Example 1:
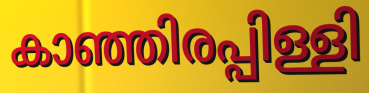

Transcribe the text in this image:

കാഞ്ഞിരപ്പിള്ളി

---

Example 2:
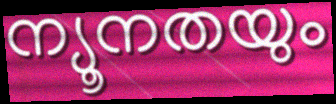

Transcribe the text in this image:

ന്യൂനതയും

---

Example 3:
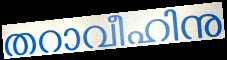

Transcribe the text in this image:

തറാവീഹിനു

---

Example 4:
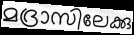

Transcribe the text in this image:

മദ്രാസിലേക്കു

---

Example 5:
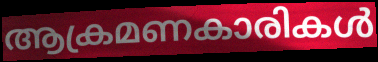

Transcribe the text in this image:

ആക്രമണകാരികൾ